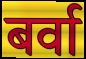
बर्वा